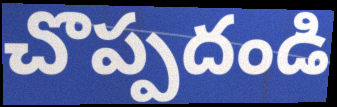
చొప్పదండి